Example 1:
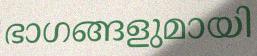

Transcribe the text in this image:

ഭാഗങ്ങളുമായി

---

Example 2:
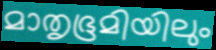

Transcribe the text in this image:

മാതൃഭൂമിയിലും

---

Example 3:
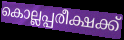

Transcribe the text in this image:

കൊല്ലപ്പരീക്ഷക്ക്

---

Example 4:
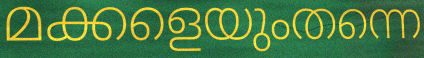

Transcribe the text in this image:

മക്കളെയുംതന്നെ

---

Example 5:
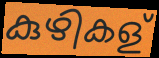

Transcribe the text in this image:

കുഴികള്